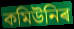
কমিউনিৰ